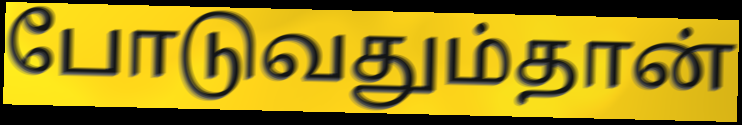
போடுவதும்தான்